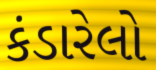
કંડારેલો